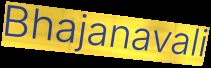
Bhajanavali